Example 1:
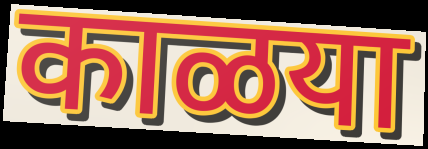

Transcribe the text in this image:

काळया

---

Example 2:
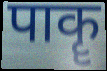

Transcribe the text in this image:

पाकॄ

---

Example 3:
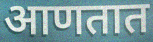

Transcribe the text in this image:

आणतात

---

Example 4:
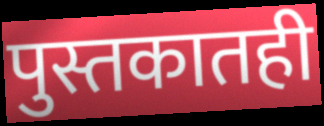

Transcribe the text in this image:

पुस्तकातही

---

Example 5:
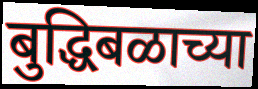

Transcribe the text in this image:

बुद्धिबळाच्या